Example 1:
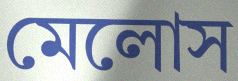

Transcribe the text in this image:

মেলোস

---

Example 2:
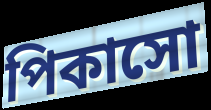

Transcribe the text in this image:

পিকাসো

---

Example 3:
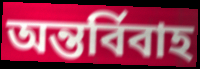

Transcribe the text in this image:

অন্তর্বিবাহ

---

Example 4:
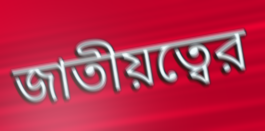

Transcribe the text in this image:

জাতীয়ত্বের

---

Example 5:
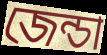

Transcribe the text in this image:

জেন্ডা